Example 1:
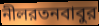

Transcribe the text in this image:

নীলরতনবাবুর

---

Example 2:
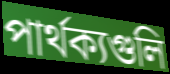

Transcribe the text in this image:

পার্থক্যগুলি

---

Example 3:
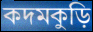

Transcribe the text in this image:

কদমকুড়ি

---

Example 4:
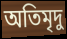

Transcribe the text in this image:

অতিমৃদু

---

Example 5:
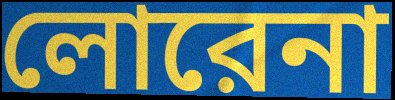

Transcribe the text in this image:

লোরেনা